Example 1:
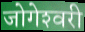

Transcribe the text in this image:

जोगेश्वरी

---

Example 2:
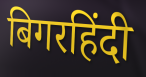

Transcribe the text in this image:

बिगरहिंदी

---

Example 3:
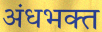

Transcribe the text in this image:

अंधभक्त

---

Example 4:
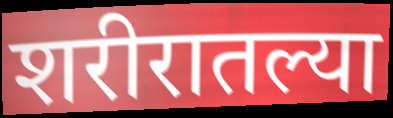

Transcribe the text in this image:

शरीरातल्या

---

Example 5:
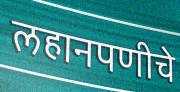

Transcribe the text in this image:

लहानपणीचे